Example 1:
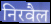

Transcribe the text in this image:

निरवैल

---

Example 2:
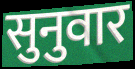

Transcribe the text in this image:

सुनुवार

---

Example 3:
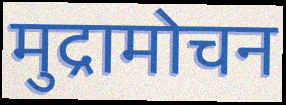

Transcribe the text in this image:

मुद्रामोचन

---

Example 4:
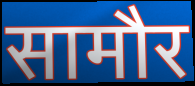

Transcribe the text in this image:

सामौर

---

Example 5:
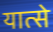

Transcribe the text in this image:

यात्से